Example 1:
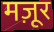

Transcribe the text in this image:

मज़ूर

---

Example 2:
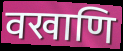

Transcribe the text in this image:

वखाणि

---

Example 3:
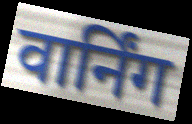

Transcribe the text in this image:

वार्निंग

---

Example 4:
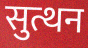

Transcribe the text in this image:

सुत्थन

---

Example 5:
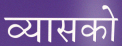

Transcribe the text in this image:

व्यासको